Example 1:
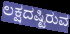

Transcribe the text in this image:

ಲಕ್ಷದಷ್ಟಿರುವ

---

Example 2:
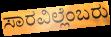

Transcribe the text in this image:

ಸಾರವಿಲ್ಲೆಂಬರು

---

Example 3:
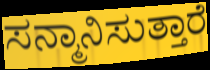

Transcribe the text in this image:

ಸನ್ಮಾನಿಸುತ್ತಾರೆ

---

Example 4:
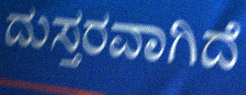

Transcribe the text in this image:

ದುಸ್ತರವಾಗಿದೆ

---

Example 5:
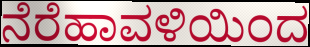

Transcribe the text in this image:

ನೆರೆಹಾವಳಿಯಿಂದ